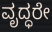
ವೃದ್ಧರೇ